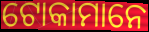
ଟୋକାମାନେ